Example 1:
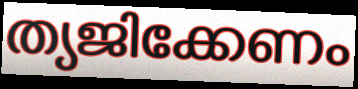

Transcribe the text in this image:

ത്യജിക്കേണം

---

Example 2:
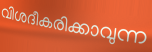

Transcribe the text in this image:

വിശദീകരിക്കാവുന്ന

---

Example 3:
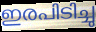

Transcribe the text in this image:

ഇരപിടിച്ചു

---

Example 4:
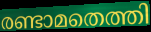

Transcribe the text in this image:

രണ്ടാമതെത്തി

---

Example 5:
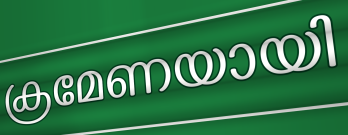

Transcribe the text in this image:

ക്രമേണയായി